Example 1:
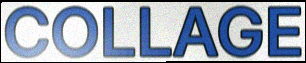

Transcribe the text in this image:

COLLAGE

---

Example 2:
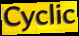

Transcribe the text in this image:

Cyclic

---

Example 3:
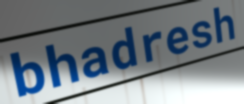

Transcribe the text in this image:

bhadresh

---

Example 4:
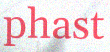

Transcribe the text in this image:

phast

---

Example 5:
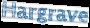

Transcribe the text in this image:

Hargrave